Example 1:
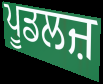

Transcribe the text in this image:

ਪੂਡਲਜ਼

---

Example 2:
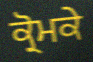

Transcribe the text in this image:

ਕ੍ਰੋਮਕੇ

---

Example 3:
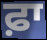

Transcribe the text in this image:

ਫ਼ਾ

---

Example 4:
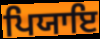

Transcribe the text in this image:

ਪਿਯਾਇ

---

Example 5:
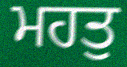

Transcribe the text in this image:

ਮਹਤੁ